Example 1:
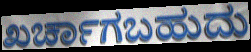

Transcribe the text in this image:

ಖರ್ಚಾಗಬಹುದು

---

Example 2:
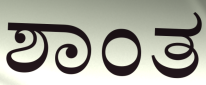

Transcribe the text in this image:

ಶಾಂತ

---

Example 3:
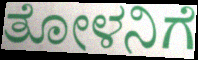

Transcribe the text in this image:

ತೋಳನಿಗೆ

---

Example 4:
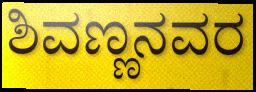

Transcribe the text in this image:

ಶಿವಣ್ಣನವರ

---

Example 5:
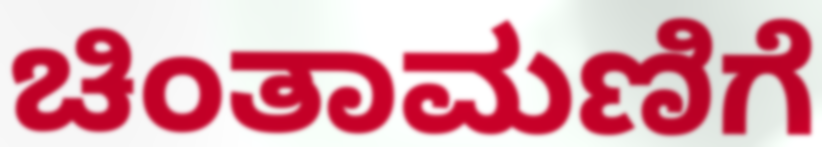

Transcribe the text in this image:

ಚಿಂತಾಮಣಿಗೆ